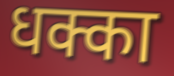
धक्का